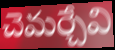
చెమర్చేవి